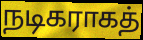
நடிகராகத்